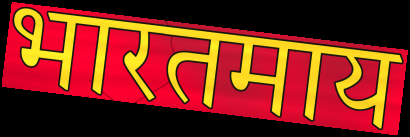
भारतमाय